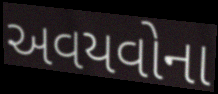
અવયવોના